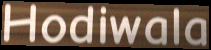
Hodiwala